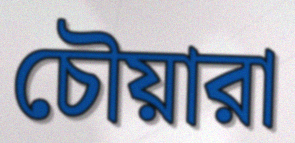
চৌয়ারা